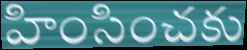
హింసించకు